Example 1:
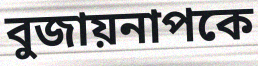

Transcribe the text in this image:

বুজায়নাপকে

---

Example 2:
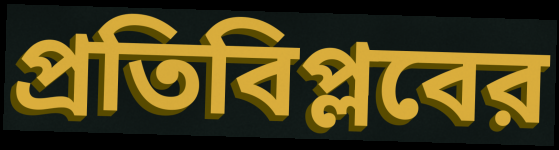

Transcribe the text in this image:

প্রতিবিপ্লবের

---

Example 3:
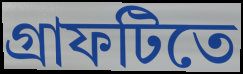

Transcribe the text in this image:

গ্রাফটিতে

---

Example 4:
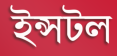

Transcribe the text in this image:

ইন্সটল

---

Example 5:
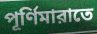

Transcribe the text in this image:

পূর্ণিমারাতে